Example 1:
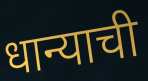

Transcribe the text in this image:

धान्याची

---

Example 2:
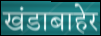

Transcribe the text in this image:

खंडाबाहेर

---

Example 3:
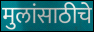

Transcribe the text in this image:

मुलांसाठीचे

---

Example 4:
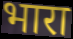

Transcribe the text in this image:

भारा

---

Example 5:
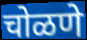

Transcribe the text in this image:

चोळणे